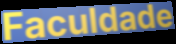
Faculdade